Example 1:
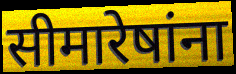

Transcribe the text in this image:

सीमारेषांना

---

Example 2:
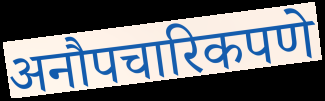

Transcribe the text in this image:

अनौपचारिकपणे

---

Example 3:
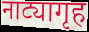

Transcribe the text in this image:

नाट्यागृह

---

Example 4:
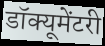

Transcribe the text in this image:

डॉक्यूमेंटरी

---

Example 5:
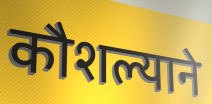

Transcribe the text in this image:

कौशल्याने